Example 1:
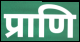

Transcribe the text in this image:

प्राणि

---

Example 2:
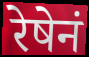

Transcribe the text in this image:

रेषेनं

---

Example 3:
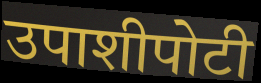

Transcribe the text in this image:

उपाशीपोटी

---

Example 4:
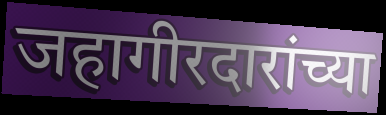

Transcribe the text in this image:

जहागीरदारांच्या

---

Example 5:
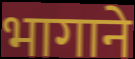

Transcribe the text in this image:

भागाने